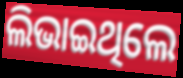
ଲିଭାଇଥିଲେ